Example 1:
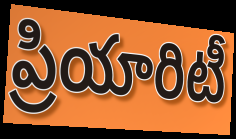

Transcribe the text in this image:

ప్రియారిటీ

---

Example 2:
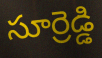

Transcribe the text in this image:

సూర్రెడ్డి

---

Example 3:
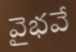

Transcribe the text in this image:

వైభవే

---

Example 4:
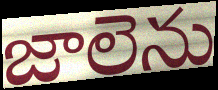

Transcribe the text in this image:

జాలెను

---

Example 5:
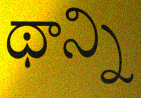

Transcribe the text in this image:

థాన్ని